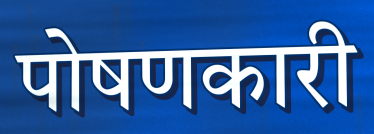
पोषणकारी